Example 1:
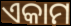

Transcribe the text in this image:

ଏକାମ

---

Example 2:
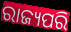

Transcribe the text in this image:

ରାଜ୍ୟପରି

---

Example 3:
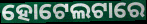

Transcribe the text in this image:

ହୋଟେଲଟାରେ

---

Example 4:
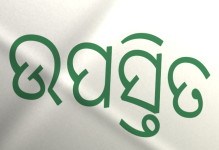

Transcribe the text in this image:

ଉପସ୍ତିତ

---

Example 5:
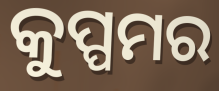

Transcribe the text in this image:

କୁପ୍ପମର